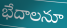
భేదాలనూ